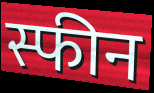
स्फीन